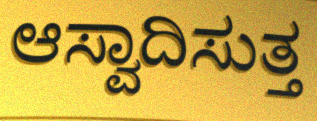
ಆಸ್ವಾದಿಸುತ್ತ